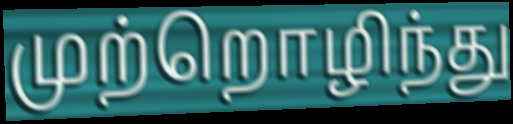
முற்றொழிந்து